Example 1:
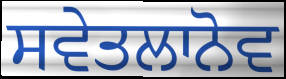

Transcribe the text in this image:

ਸਵੇਤਲਾਨੋਵ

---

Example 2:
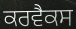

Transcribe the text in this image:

ਕਰਵੈਕਸ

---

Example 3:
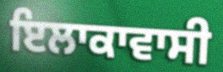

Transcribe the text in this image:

ਇਲਾਕਾਵਾਸੀ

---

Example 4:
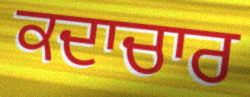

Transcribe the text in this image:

ਕਦਾਚਾਰ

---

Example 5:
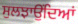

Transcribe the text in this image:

ਸੁਲਝਾਉਂਦਿਆਂ